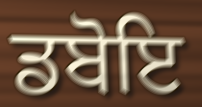
ਡਬੋਇ